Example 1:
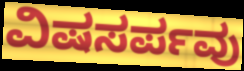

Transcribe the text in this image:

ವಿಷಸರ್ಪವು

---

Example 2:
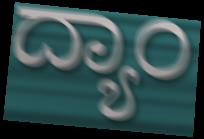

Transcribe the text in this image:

ದ್ಯಾಂ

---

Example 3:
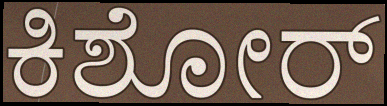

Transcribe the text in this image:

ಕಿಶೋರ್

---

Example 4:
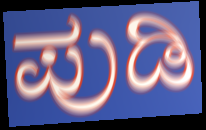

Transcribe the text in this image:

ಪುಡಿ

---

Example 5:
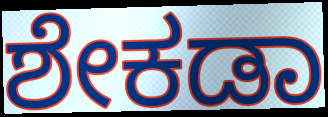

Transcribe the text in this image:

ಶೇಕಡಾ